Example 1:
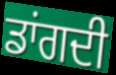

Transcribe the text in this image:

ਡਾਂਗਦੀ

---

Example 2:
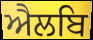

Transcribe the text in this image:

ਐਲਬਿ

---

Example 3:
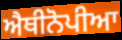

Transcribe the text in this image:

ਐਥੀਨੋਪੀਆ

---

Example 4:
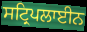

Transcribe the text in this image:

ਸਟ੍ਰਿਪਲਾਈਨ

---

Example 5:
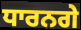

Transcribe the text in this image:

ਧਾਰਨਗੇ